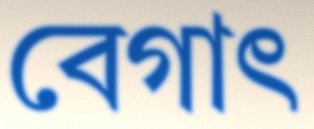
বেগাৎ